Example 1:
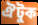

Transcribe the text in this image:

ঐটুক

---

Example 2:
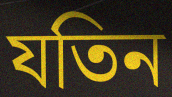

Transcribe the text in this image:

যতিন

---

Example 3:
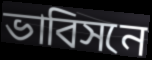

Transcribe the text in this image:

ভাবিসনে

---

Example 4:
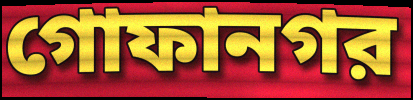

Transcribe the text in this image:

গোফানগর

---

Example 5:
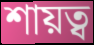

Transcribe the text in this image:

শায়ত্ব